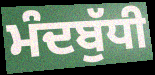
ਮੰਦਬੁੱਧੀ